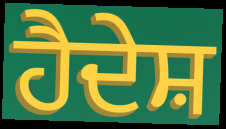
ਹੈਦੇਸ਼